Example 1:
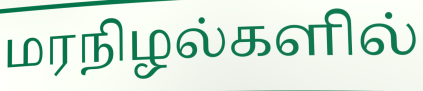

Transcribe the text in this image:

மரநிழல்களில்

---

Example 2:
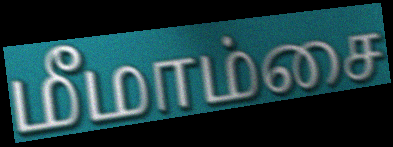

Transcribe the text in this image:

மீமாம்சை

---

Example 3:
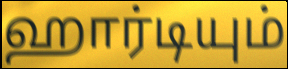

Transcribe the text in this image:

ஹார்டியும்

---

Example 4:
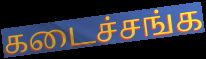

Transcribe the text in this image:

கடைச்சங்க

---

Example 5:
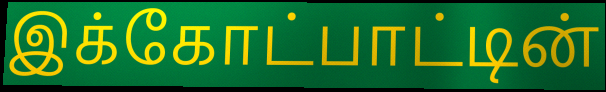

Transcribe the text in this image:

இக்கோட்பாட்டின்